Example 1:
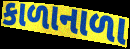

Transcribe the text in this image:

કાળાનાળા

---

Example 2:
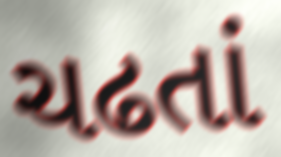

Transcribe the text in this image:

ચઢતાં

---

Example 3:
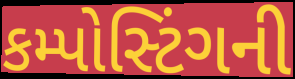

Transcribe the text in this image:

કમ્પોસ્ટિંગની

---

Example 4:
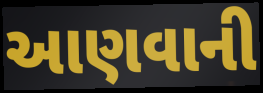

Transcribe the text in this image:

આણવાની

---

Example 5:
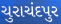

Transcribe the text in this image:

ચુરાચંદપુર